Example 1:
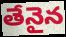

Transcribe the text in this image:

తేనైన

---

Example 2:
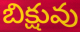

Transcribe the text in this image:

బిక్షువు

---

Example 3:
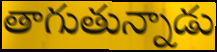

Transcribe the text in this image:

తాగుతున్నాడు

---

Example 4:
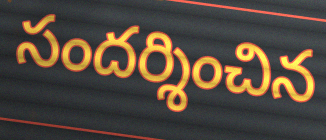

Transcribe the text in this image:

సందర్శించిన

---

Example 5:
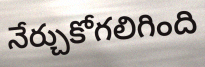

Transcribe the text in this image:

నేర్చుకోగలిగింది